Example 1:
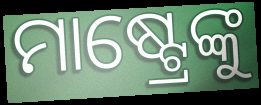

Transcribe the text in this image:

ମାଷ୍ଟ୍ରେଙ୍କୁ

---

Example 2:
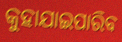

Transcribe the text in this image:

କୁହାଯାଇପାରିବ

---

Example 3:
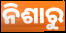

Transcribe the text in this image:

ନିଶାରୁ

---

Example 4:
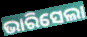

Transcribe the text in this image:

ଭାରିସେଲା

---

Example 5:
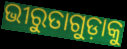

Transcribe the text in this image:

ଭୀରୁତାଗୁଡ଼ାକୁ